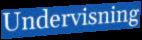
Undervisning